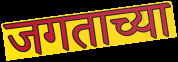
जगताच्या